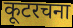
कूटरचना